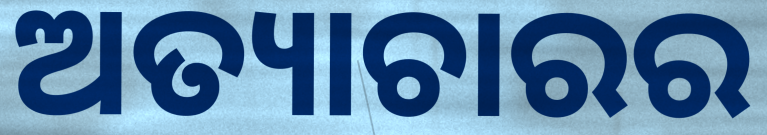
ଅତ୍ୟାଚାରର